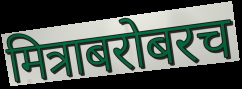
मित्राबरोबरच